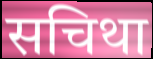
सचिथा